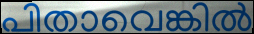
പിതാവെങ്കിൽ